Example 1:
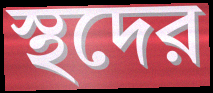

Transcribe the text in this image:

স্থদের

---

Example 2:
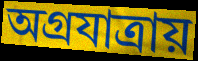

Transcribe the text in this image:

অগ্রযাত্রায়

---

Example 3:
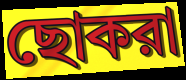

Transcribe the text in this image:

ছোকরা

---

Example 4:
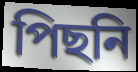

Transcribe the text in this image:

পিছনি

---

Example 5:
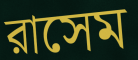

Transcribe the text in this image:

রাসেম